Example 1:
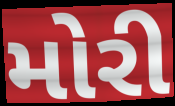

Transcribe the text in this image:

મોરી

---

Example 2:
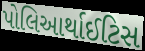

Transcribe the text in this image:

પોલિઆર્થાઈટિસ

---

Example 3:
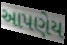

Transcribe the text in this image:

આપણેય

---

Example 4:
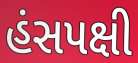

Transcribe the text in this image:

હંસપક્ષી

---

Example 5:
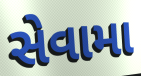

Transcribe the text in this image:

સેવામા